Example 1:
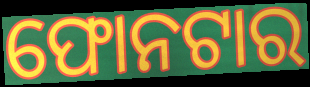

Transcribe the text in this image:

ଫୋନଟାର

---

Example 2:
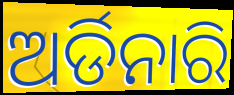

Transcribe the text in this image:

ଅର୍ଡିନାରି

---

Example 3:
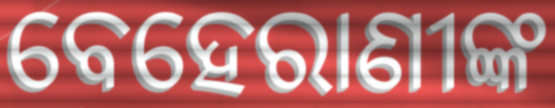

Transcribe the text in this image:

ବେହେରାଣୀଙ୍କ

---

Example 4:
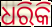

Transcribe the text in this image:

ଧରିକି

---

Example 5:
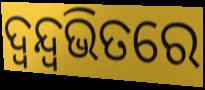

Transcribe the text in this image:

ଦ୍ୱନ୍ଦ୍ୱଭିତରେ